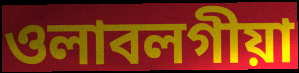
ওলাবলগীয়া